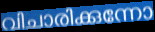
വിചാരിക്കുന്നോ